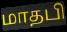
மாதபி